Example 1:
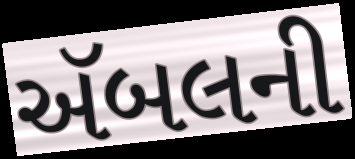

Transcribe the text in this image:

ઍબલની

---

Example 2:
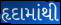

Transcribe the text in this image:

હૃદામાંથી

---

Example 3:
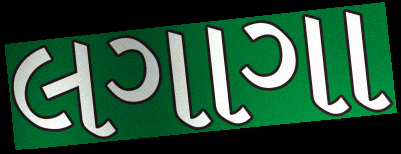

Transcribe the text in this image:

લગાગા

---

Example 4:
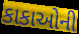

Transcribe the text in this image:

કાકાઓની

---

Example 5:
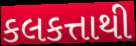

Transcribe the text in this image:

કલકત્તાથી